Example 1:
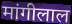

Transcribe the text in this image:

मांगीलाल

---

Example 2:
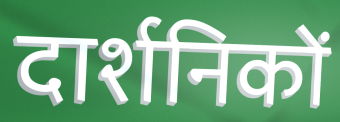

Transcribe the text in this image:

दार्शनिकों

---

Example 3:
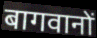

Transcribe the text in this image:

बागवानों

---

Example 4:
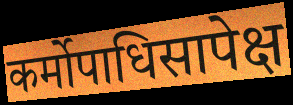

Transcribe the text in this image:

कर्मोपाधिसापेक्ष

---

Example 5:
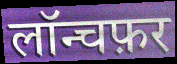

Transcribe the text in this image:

लॉन्चफ़र